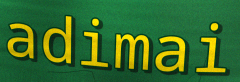
adimai